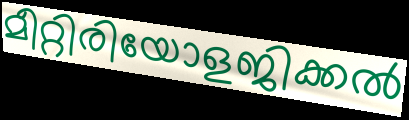
മീറ്റിരിയോളജിക്കൽ